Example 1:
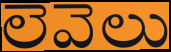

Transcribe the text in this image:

లెవెలు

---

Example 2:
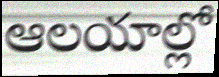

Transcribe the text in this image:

ఆలయాల్లో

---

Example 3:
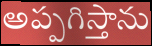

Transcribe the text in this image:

అప్పగిస్తాను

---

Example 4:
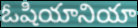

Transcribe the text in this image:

ఓషియానియా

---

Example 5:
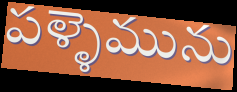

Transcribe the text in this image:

పళ్ళెమును